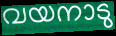
വയനാടു